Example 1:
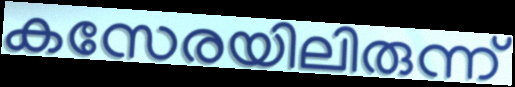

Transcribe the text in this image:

കസേരയിലിരുന്ന്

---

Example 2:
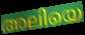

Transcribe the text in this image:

അലിയെ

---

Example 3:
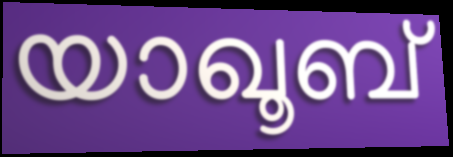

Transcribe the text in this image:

യാഖൂബ്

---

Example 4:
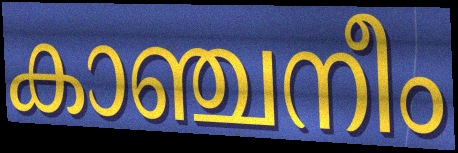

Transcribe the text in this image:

കാഞ്ചനീം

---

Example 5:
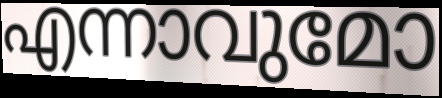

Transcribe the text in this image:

എന്നാവുമോ